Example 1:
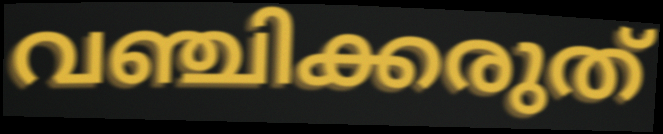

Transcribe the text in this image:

വഞ്ചിക്കരുത്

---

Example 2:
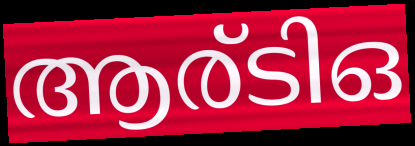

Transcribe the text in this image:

ആര്ടിഒ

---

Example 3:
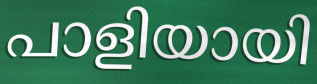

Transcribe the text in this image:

പാളിയായി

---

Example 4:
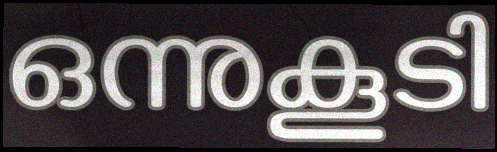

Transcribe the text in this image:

ഒന്നുകൂടി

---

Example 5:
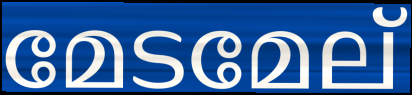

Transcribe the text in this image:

മേടമേല്